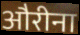
औरीना